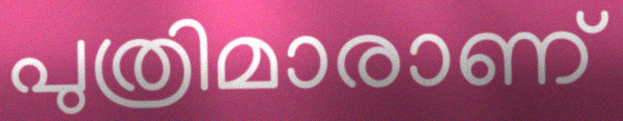
പുത്രിമാരാണ്